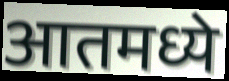
आतमध्ये